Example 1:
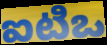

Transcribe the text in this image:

ఐటిఒ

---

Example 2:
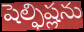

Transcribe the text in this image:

షెల్ఫిష్లను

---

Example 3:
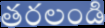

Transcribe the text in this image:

తరలండి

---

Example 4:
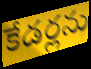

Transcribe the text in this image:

కేడర్లను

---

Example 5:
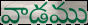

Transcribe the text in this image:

వాడము